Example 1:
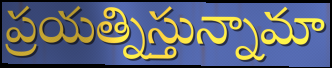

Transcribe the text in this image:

ప్రయత్నిస్తున్నామా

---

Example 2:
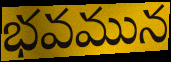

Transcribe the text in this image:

భవమున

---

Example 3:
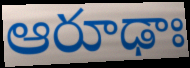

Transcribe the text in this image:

ఆరూఢాః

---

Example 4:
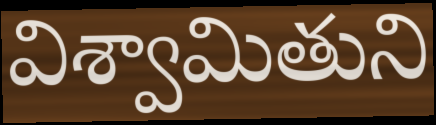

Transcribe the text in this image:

విశ్వామితుని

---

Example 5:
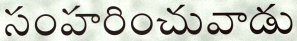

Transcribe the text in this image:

సంహరించువాడు